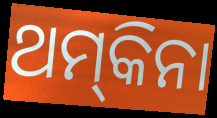
ଥମ୍‍କିନା